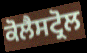
ਕੋਲੈਸਟ੍ਰੋਲ